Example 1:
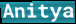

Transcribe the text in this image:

Anitya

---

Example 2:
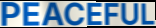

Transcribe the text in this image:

PEACEFUL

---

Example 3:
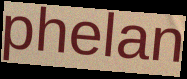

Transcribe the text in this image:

phelan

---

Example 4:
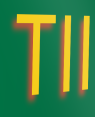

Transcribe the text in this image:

TII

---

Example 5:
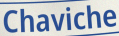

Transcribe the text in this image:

Chaviche